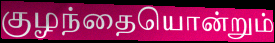
குழந்தையொன்றும்